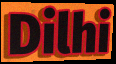
Dilhi